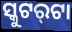
ସ୍କୁଟର୍‌ଟା